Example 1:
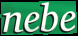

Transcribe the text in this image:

nebe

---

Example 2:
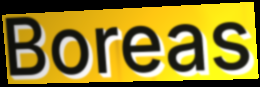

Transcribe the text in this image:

Boreas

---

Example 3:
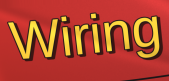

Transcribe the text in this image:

Wiring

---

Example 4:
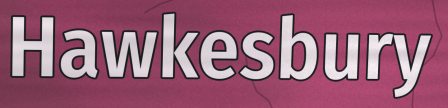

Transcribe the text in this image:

Hawkesbury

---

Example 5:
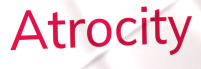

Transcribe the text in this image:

Atrocity